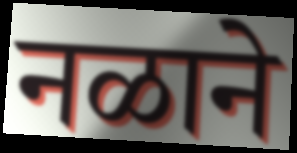
नळाने